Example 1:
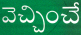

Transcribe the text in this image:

వెచ్చించే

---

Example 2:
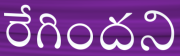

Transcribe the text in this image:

రేగిందని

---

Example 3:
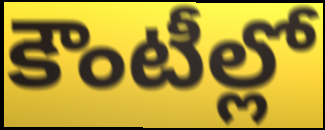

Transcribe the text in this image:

కౌంటీల్లో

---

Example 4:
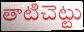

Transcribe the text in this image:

తాటిచెట్టు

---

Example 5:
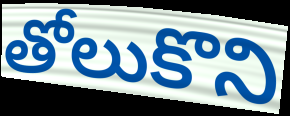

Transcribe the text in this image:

తోలుకొని